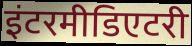
इंटरमीडिएटरी